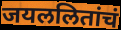
जयललितांचं